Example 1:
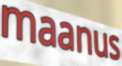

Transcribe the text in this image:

maanus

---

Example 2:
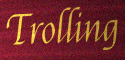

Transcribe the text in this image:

Trolling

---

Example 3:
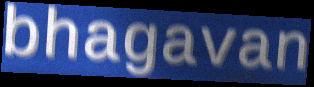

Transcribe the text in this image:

bhagavan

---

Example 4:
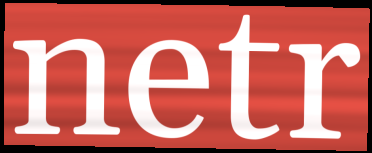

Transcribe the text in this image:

netr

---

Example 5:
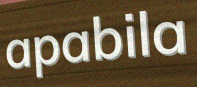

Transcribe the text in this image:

apabila